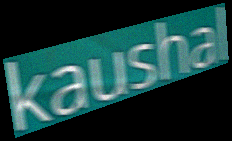
kaushal